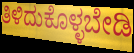
ತಿಳಿದುಕೊಳ್ಳಬೇಡಿ